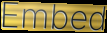
Embed